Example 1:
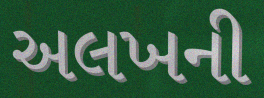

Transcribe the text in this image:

અલખની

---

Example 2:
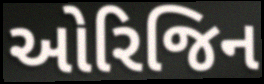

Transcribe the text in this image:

ઓરિજિન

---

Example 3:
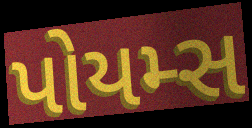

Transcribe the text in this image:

પોયમ્સ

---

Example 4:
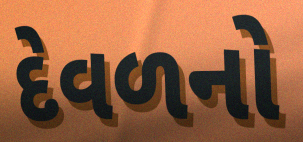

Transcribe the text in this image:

દેવળનો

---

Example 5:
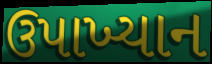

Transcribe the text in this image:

ઉપાખ્યાન